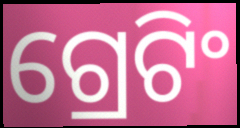
ଗ୍ରେଟିଂ